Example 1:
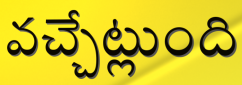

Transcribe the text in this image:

వచ్చేట్లుంది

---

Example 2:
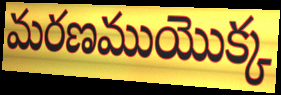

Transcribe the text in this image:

మరణముయొక్క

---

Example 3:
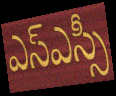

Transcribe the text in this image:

ఎస్ఎస్సీ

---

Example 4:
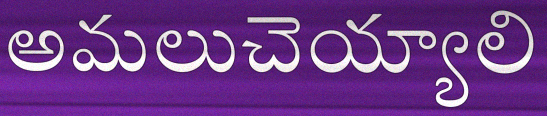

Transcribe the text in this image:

అమలుచెయ్యాలి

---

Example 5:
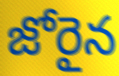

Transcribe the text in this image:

జోరైన